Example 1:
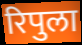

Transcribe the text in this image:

रिपुला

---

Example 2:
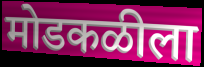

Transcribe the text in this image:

मोडकळीला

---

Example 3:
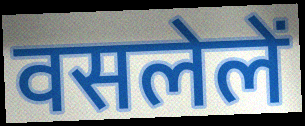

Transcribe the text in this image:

वसलेलें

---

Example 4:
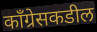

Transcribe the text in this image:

काँग्रेसकडील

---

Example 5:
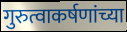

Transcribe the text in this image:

गुरुत्वाकर्षणांच्या